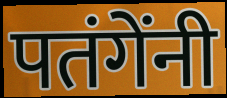
पतंगेंनी